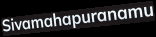
Sivamahapuranamu